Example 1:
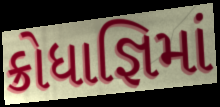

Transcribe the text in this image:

ક્રોધાજ્ઞિમાં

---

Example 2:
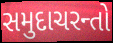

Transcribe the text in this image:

સમુદાચરન્તો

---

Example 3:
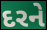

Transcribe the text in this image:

દરને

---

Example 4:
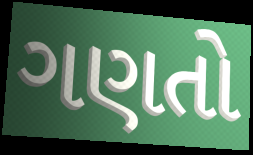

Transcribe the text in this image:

ગણતો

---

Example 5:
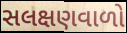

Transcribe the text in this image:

સલક્ષણવાળો